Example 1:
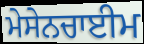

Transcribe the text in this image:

ਮੇਸੇਨਚਾਈਮ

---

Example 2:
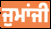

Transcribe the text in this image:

ਜੁਮਾਂਜੀ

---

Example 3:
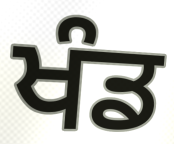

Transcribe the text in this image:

ਖੰਡ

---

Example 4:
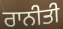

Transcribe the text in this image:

ਰਾਨੀਤੀ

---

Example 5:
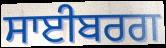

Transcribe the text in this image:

ਸਾਈਬਰਗ